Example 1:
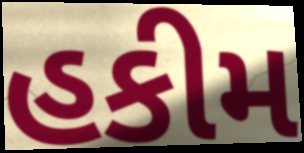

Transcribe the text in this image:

હકીમ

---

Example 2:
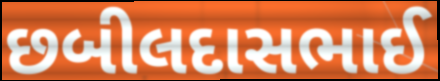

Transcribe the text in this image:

છબીલદાસભાઈ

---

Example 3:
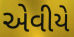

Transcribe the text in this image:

એવીયે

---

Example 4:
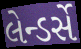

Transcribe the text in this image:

લેન્ડર્સે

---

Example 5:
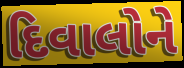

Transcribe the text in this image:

દિવાલોને